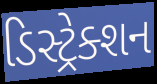
ડિસ્ટ્રેક્શન